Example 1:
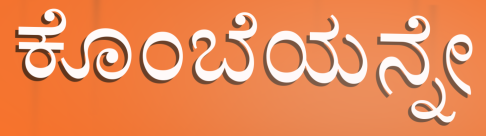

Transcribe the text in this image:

ಕೊಂಬೆಯನ್ನೇ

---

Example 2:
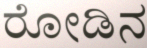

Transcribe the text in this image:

ರೋಡಿನ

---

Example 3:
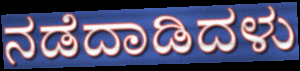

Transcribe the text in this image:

ನಡೆದಾಡಿದಳು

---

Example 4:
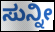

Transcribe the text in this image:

ಸುನ್ನೀ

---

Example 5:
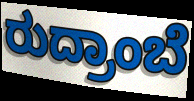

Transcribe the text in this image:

ರುದ್ರಾಂಬೆ